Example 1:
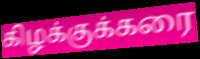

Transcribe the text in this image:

கிழக்குக்கரை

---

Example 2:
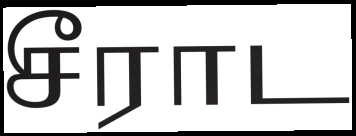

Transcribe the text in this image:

சீராட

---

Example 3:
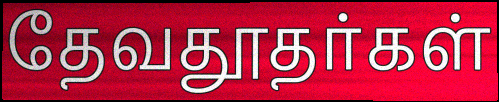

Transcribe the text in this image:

தேவதூதர்கள்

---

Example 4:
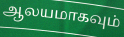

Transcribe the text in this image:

ஆலயமாகவும்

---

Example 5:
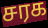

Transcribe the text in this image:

சரக